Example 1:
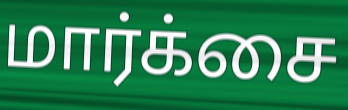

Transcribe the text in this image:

மார்க்சை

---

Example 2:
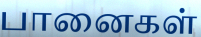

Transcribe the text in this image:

பானைகள்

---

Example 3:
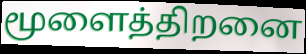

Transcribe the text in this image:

மூளைத்திறனை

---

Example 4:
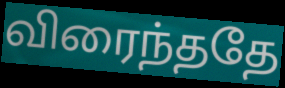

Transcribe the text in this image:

விரைந்ததே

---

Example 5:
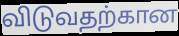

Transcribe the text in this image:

விடுவதற்கான